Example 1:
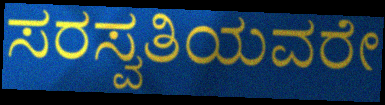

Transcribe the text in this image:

ಸರಸ್ವತಿಯವರೇ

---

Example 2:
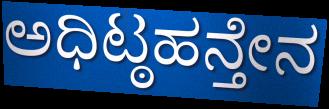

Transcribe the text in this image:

ಅಧಿಟ್ಠಹನ್ತೇನ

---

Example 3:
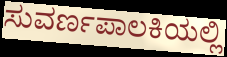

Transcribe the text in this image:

ಸುವರ್ಣಪಾಲಕಿಯಲ್ಲಿ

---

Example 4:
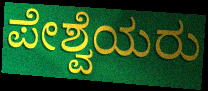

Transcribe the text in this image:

ಪೇಶ್ವೆಯರು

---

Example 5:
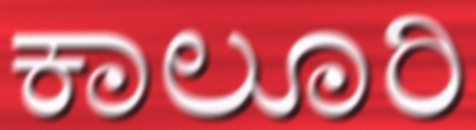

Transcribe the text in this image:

ಕಾಲೂರಿ